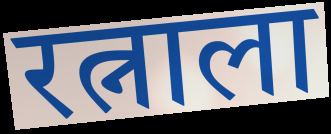
रत्नाला